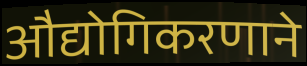
औद्योगिकरणाने